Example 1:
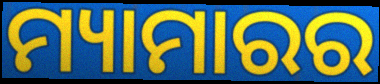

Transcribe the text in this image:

ମ୍ୟାମାରର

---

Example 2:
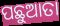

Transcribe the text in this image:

ପଛୁଆତା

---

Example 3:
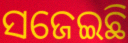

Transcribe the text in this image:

ସଜେଇଛି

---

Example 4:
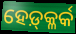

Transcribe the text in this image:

ହେଡ଼୍‍କ୍ଳର୍କ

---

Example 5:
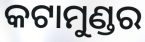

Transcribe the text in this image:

କଟାମୁଣ୍ଡର